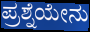
ಪ್ರಶ್ನೆಯೇನು